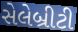
સેલેબ્રીટી